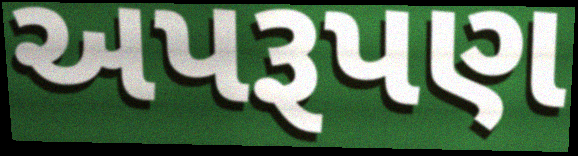
અપરૂપણ